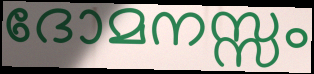
ദോമനസ്സം